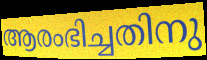
ആരംഭിച്ചതിനു